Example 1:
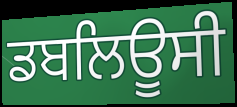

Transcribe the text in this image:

ਡਬਲਿਊਸੀ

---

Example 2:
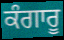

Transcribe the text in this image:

ਕੰਗਾਰੂ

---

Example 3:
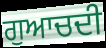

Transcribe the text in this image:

ਗੁਆਚਦੀ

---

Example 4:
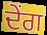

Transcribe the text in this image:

ਦੇਂਗ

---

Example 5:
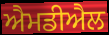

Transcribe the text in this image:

ਐਮਡੀਐਲ